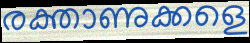
രക്താണുക്കളെ